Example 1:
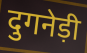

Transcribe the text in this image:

दुगनेड़ी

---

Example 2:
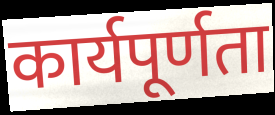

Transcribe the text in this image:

कार्यपूर्णता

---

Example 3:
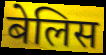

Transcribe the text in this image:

बेलिस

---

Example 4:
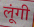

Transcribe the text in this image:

लूंगी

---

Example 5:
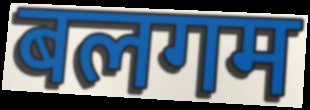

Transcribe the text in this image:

बलगम